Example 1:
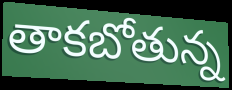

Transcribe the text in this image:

తాకబోతున్న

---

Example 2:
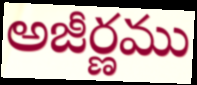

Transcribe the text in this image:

అజీర్ణము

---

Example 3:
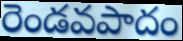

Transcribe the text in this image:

రెండవపాదం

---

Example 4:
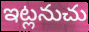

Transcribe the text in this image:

ఇట్లనుచు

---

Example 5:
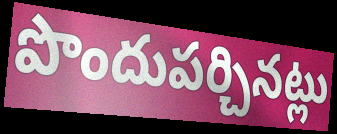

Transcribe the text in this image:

పొందుపర్చినట్లు